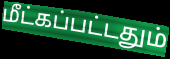
மீட்கப்பட்டதும்